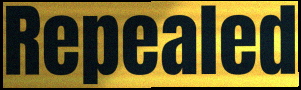
Repealed